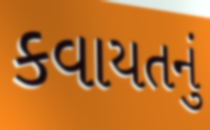
કવાયતનું